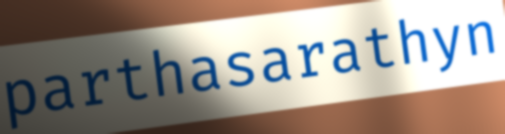
parthasarathyn